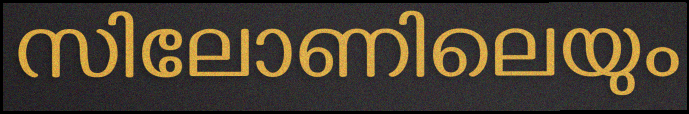
സിലോണിലെയും